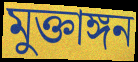
মুক্তাঙ্গন